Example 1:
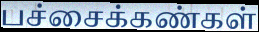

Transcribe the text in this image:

பச்சைக்கண்கள்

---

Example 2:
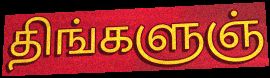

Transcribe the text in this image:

திங்களுஞ்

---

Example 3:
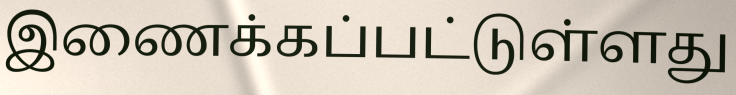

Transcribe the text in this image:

இணைக்கப்பட்டுள்ளது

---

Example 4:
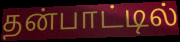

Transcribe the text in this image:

தன்பாட்டில்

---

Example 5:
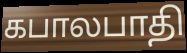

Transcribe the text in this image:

கபாலபாதி